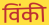
विंकी